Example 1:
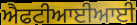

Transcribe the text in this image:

ਐਫਟੀਆਈਆਈ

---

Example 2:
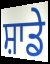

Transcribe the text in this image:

ਸ਼ਾਡੇ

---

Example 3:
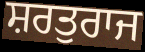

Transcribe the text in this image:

ਸ਼ਰਤੁਰਾਜ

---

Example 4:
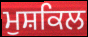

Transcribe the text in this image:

ਮੁਸ਼ਕਿਲ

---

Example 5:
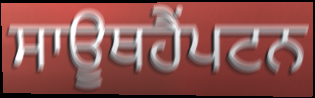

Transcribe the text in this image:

ਸਾਊਥਹੈਂਪਟਨ